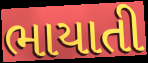
ભાયાતી